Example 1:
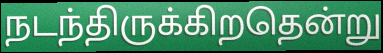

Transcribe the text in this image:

நடந்திருக்கிறதென்று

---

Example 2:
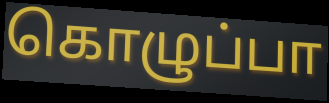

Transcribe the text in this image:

கொழுப்பா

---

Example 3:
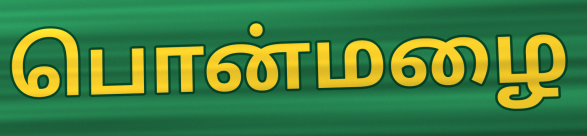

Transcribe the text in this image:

பொன்மழை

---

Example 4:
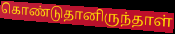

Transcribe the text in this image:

கொண்டுதானிருந்தாள்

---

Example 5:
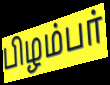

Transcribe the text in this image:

பிழம்பர்